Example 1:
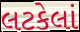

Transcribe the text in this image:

લટકેલાં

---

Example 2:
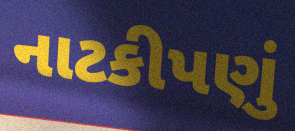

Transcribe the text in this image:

નાટકીપણું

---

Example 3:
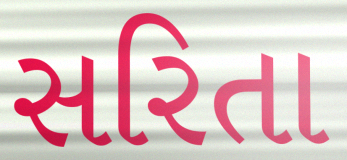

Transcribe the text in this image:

સરિતા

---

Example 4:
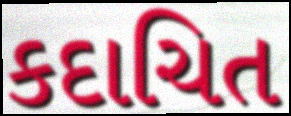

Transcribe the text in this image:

કદાચિત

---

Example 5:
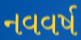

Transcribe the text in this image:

નવવર્ષ